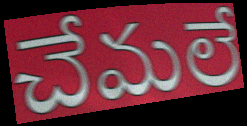
చేమలే